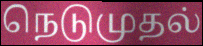
நெடுமுதல்